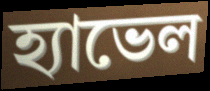
হ্যাভেল